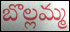
బొల్లమ్మ